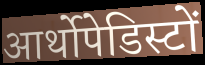
आर्थोपेडिस्टों